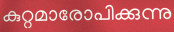
കുറ്റമാരോപിക്കുന്നു